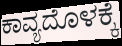
ಕಾವ್ಯದೊಳಕ್ಕೆ